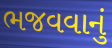
ભજવવાનું